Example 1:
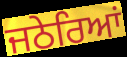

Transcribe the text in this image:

ਜਠੇਰਿਆਂ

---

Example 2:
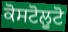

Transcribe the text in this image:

ਕੋਸਟੋਲੂਟੋ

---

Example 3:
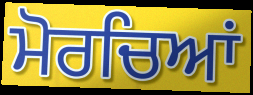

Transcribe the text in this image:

ਮੋਰਚਿਆਂ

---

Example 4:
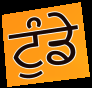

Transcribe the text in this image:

ਟੁੰਡੇ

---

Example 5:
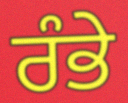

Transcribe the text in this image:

ਰੰਭੇ